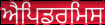
ਐਪਿਡਰਮਿਸ